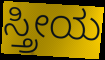
ಸ್ತ್ರೀಯ